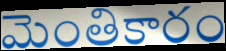
మెంతికారం